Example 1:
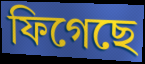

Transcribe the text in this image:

ফিগেছে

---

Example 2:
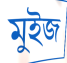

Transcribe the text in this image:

মুইজ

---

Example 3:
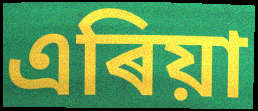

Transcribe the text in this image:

এৰিয়া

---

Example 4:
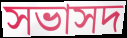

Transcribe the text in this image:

সভাসদ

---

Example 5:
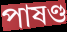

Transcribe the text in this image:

পাষণ্ড